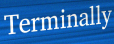
Terminally